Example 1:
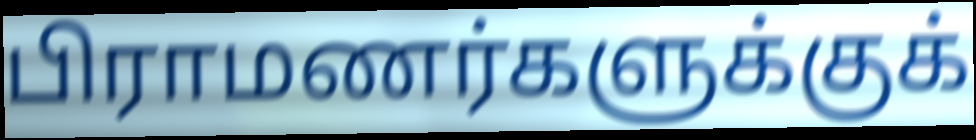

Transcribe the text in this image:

பிராமணர்களுக்குக்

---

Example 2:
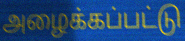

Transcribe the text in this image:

அழைக்கப்பட்டு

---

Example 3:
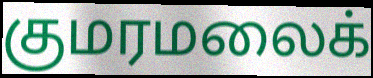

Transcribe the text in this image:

குமரமலைக்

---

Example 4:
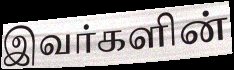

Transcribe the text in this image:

இவர்களின்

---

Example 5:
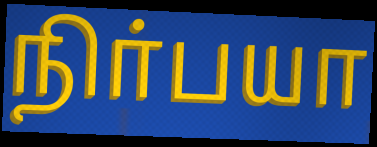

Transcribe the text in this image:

நிர்பயா